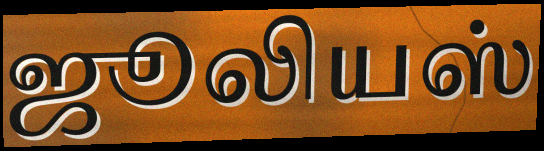
ஜூலியஸ்